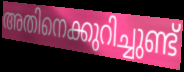
അതിനെക്കുറിച്ചുണ്ട്